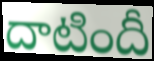
దాటిందీ